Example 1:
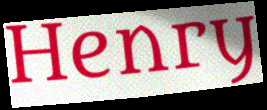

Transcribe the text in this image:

Henry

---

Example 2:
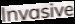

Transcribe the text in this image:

Invasive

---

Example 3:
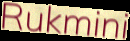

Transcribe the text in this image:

Rukmini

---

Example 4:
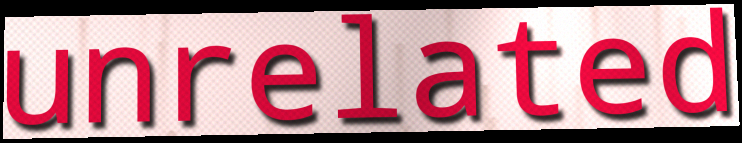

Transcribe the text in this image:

unrelated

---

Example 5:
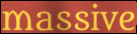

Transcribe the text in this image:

massive